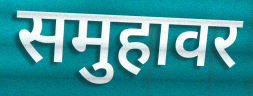
समुहावर